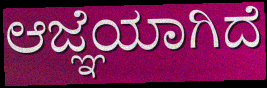
ಆಜ್ಞೆಯಾಗಿದೆ